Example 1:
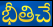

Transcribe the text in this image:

భీతిచే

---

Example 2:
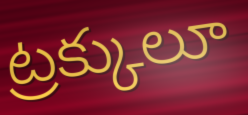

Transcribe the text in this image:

ట్రక్కులూ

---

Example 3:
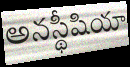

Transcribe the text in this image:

అనస్థీషియా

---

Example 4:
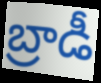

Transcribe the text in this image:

బ్రాడీ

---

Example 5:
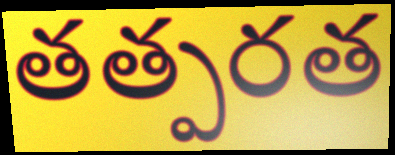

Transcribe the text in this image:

తత్పరత